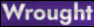
Wrought